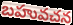
బహువచన